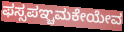
ಫಸ್ಸಪಞ್ಚಮಕೇಯೇವ